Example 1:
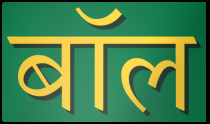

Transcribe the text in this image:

बॉल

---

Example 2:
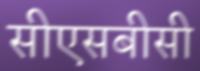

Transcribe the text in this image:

सीएसबीसी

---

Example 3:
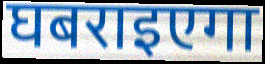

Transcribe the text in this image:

घबराइएगा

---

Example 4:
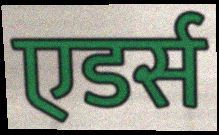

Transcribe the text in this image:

एडर्स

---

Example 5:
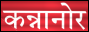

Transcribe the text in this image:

कन्नानोर